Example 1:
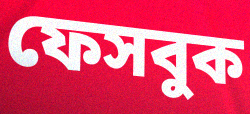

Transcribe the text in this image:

ফেসবুক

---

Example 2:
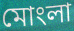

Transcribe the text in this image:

মোংলা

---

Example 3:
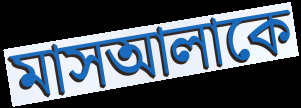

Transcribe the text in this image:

মাসআলাকে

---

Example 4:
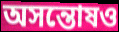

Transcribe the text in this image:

অসন্তোষও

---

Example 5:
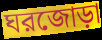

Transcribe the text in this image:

ঘরজোড়া